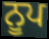
ਨੂਪ